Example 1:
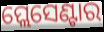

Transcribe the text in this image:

ପ୍ଲେସେଣ୍ଟାର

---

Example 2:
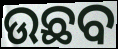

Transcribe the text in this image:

ଉଛବ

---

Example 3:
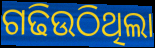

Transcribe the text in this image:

ଗଢିଉଠିଥିଲା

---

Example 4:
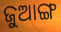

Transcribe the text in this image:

ଜୁଆଙ୍ଗ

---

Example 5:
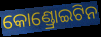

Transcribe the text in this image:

କୋଣ୍ଡ୍ରୋଇଟିନ